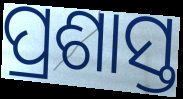
ପ୍ରଶାସ୍ତ